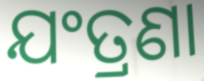
ଯଂତ୍ରଣା